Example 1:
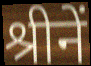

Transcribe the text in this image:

श्रीनें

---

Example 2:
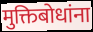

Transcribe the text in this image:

मुक्तिबोधांना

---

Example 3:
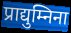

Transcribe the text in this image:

प्राद्युम्निना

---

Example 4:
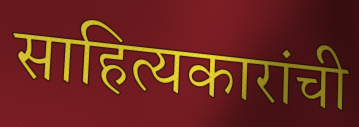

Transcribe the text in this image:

साहित्यकारांची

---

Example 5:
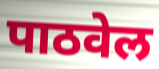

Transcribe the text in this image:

पाठवेल